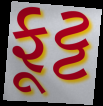
ફૂટ્ટ